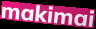
makimai